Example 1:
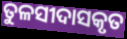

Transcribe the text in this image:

ତୁଳସୀଦାସକୃତ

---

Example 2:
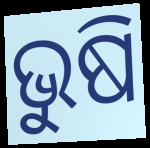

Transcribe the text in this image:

ଭୁଷି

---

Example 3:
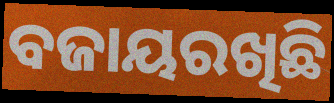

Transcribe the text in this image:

ବଜାୟରଖିଛି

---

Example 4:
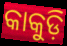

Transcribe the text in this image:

କାକୁଡ଼ି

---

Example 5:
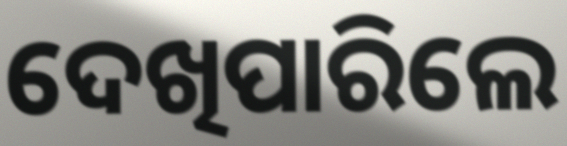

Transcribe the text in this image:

ଦେଖିପାରିଲେ